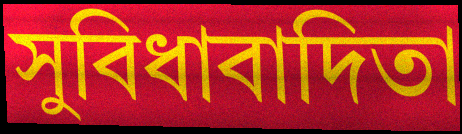
সুবিধাবাদিতা